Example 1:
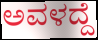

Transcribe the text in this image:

ಅವಳದ್ದೆ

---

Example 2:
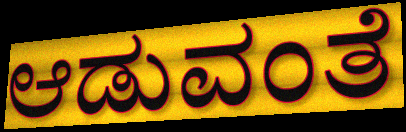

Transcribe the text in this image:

ಆಡುವಂತೆ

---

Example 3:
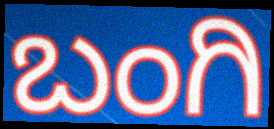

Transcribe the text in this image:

ಬಂಗಿ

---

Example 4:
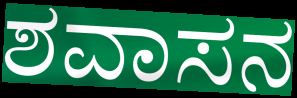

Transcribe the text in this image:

ಶವಾಸನ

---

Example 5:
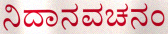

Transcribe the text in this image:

ನಿದಾನವಚನಂ